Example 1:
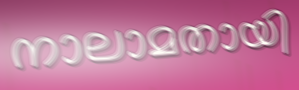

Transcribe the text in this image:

നാലാമതായി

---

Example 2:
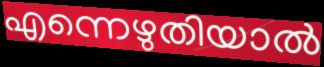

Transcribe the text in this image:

എന്നെഴുതിയാൽ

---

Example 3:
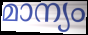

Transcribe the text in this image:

മാന്യം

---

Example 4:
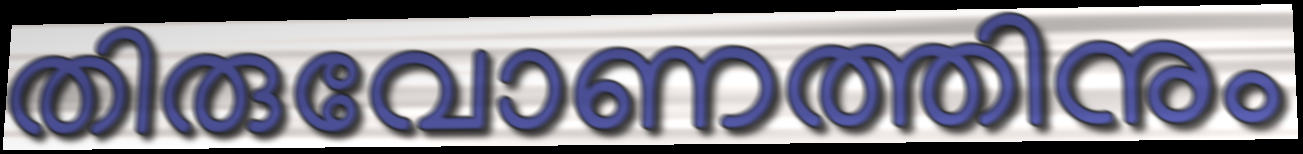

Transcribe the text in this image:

തിരുവോണത്തിനും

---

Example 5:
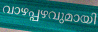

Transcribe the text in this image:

വാഴപ്പഴവുമായി